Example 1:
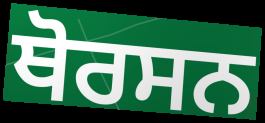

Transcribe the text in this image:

ਥੋਰਸਨ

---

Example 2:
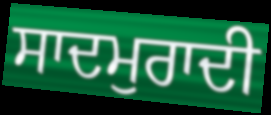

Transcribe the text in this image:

ਸਾਦਮੁਰਾਦੀ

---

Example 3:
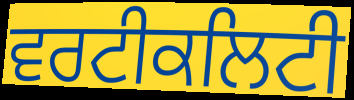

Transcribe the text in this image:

ਵਰਟੀਕਲਿਟੀ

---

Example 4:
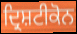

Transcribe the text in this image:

ਦ੍ਰਿਸ਼ਟੀਕੋਨ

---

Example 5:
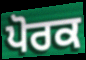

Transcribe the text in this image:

ਪੋਰਕ